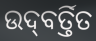
ଉଦ୍‌ବର୍ତ୍ତିତ